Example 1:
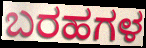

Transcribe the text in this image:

ಬರಹಗಳ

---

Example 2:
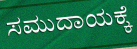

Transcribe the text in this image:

ಸಮುದಾಯಕ್ಕೆ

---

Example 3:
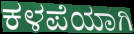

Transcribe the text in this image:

ಕಳಪೆಯಾಗಿ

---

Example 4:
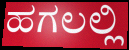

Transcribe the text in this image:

ಹಗಲಲ್ಲಿ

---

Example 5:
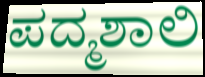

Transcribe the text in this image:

ಪದ್ಮಶಾಲಿ